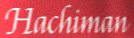
Hachiman